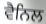
ਵੈਨਿਲ